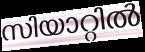
സിയാറ്റിൽ